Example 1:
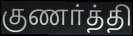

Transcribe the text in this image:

குணர்த்தி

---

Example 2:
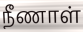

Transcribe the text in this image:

நீணாள்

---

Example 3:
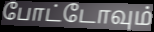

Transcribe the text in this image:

போட்டோவும்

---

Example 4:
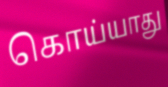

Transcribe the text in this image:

கொய்யாது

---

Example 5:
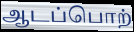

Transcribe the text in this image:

ஆடப்பொற்